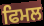
ਫਿਮਲ